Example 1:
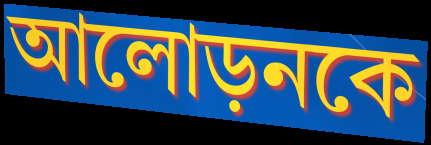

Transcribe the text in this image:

আলোড়নকে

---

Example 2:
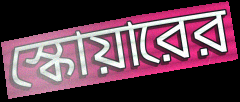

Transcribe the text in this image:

স্কোয়ারের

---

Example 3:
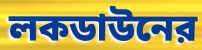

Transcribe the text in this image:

লকডাউনের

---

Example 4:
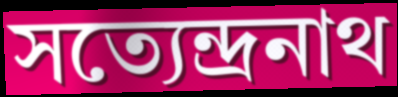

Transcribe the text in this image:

সত্যেন্দ্রনাথ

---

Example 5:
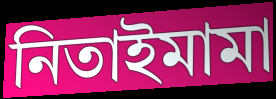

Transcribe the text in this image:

নিতাইমামা